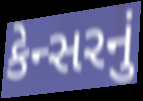
કેન્સરનું